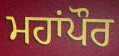
ਮਹਾਂਪੌਰ